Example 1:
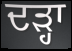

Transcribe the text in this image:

ਦੜ੍ਹਾ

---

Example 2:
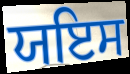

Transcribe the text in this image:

ਯਇਸ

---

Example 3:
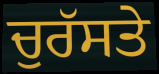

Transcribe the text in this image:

ਚੁਰੱਸਤੇ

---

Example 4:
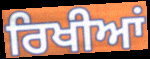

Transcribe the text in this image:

ਰਿਖੀਆਂ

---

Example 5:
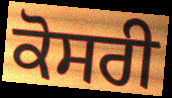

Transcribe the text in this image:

ਕੋਸਰੀ